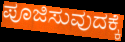
ಪೂಜಿಸುವುದಕ್ಕೆ